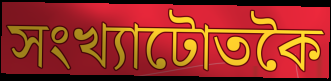
সংখ্যাটোতকৈ